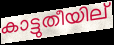
കാട്ടുതീയില്